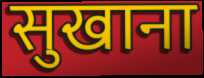
सुखाना